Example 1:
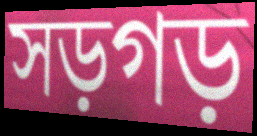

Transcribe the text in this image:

সড়গড়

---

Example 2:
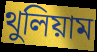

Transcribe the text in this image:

থুলিয়াম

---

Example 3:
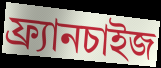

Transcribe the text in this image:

ফ্র্যানচাইজ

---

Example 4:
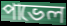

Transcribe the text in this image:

পাভেল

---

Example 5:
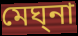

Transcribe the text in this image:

মেঘ্‌না